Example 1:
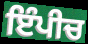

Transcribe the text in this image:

ਇੰਪੀਚ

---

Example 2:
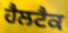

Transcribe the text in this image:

ਹੈਲਟੈਕ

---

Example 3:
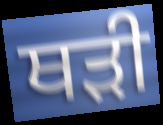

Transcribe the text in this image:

ਥੜੀ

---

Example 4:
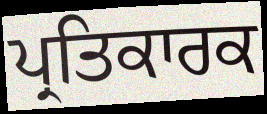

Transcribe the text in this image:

ਪ੍ਰਤਿਕਾਰਕ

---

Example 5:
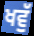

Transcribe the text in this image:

ਖਵੁੱ